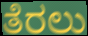
ತೆರಲು